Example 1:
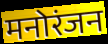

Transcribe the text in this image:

मनोरंजन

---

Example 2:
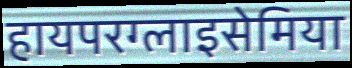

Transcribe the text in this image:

हायपरग्लाइसेमिया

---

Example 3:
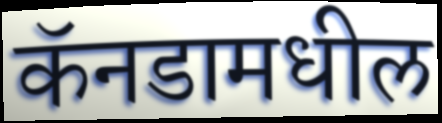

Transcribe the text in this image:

कॅनडामधील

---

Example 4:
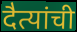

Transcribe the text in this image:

दैत्यांची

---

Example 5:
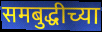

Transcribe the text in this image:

समबुद्धीच्या